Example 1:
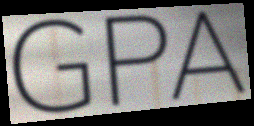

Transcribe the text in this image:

GPA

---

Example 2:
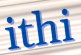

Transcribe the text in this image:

ithi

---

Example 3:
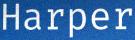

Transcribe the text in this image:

Harper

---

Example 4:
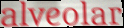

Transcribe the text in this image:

alveolar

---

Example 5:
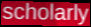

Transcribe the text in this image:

scholarly